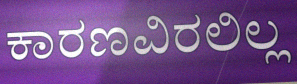
ಕಾರಣವಿರಲಿಲ್ಲ